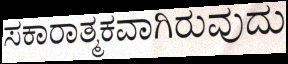
ಸಕಾರಾತ್ಮಕವಾಗಿರುವುದು